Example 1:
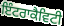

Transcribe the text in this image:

ਇੰਟਰਾਕੈਵਿਟੀ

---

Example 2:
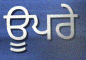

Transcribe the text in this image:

ਊਪਰੇ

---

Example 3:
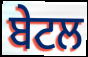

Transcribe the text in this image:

ਬੇਟਲ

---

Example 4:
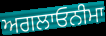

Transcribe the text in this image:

ਅਗਲਾਓਨੀਮਾ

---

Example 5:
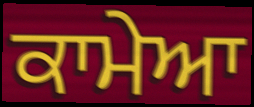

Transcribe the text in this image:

ਕਾਮੇਆ